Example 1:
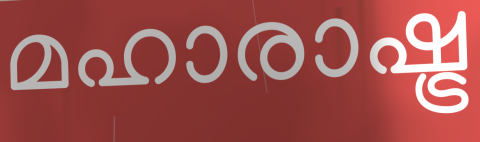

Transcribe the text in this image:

മഹാരാഷ്ട്ര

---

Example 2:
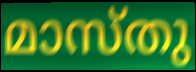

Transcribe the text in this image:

മാസ്തു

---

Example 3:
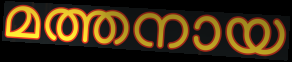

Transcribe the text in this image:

മത്തനായ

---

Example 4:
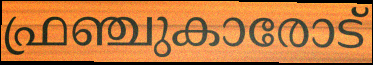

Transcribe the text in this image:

ഫ്രഞ്ചുകാരോട്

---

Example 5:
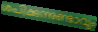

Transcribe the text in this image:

ശപിക്കുന്നുണ്ടാവും